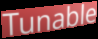
Tunable